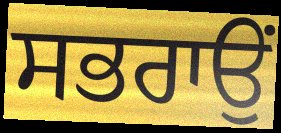
ਸਭਰਾਉਂ